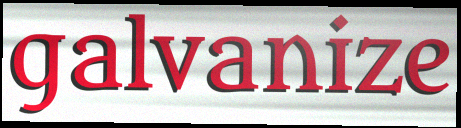
galvanize